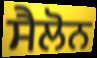
ਸੈਲੋਨ